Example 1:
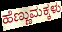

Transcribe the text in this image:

ಹೆಣ್ಣುಮಕ್ಕಳು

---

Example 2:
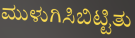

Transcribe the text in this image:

ಮುಳುಗಿಸಿಬಿಟ್ಟಿತು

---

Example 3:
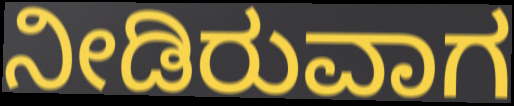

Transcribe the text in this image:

ನೀಡಿರುವಾಗ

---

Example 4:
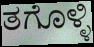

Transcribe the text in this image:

ತಗೊಳ್ಳಿ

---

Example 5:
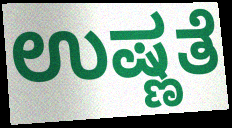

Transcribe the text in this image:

ಉಷ್ಣತೆ